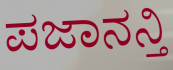
ಪಜಾನನ್ತಿ